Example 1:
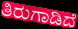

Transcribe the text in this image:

ತಿರುಗಾಡಿದೆ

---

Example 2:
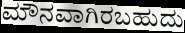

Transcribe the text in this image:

ಮೌನವಾಗಿರಬಹುದು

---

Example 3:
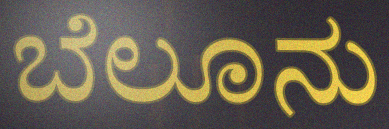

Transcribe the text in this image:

ಬೆಲೂನು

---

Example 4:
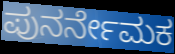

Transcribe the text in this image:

ಪುನರ್ನೇಮಕ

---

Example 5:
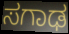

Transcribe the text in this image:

ಸಗಾಢ